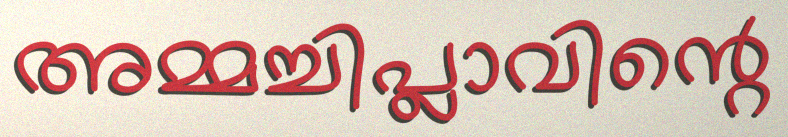
അമ്മച്ചിപ്ലാവിന്റെ